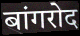
बांगरोद